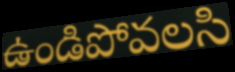
ఉండిపోవలసి